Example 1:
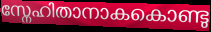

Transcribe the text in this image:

സ്നേഹിതാനാകകൊണ്ടു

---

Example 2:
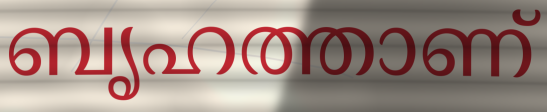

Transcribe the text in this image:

ബൃഹത്താണ്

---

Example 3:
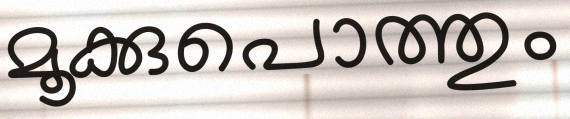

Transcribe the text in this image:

മൂക്കുപൊത്തും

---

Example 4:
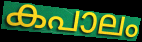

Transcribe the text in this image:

കപാലം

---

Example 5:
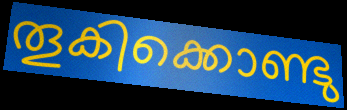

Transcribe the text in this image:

തൂകിക്കൊണ്ടു